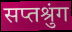
सप्तश्रुंग